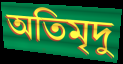
অতিমৃদু